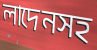
লাদেনসহ